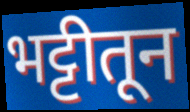
भट्टीतून